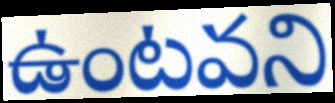
ఉంటవని